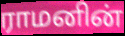
ராமனின்